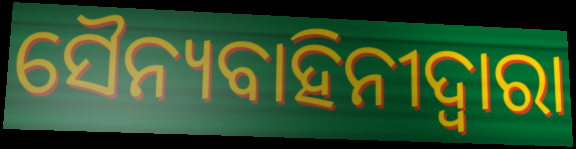
ସୈନ୍ୟବାହିନୀଦ୍ୱାରା